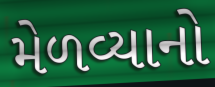
મેળવ્યાનો